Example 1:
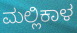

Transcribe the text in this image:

ಮಲ್ಲಿಕಾಳ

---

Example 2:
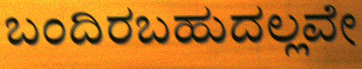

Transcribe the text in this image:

ಬಂದಿರಬಹುದಲ್ಲವೇ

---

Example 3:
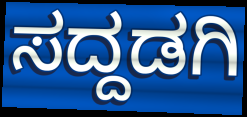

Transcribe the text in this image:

ಸದ್ದಡಗಿ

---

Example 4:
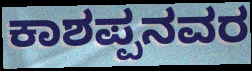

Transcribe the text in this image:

ಕಾಶಪ್ಪನವರ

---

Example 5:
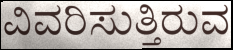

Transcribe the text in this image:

ವಿವರಿಸುತ್ತಿರುವ